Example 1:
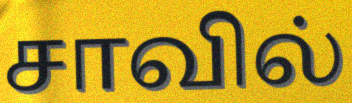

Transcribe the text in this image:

சாவில்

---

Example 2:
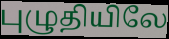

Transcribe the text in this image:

புழுதியிலே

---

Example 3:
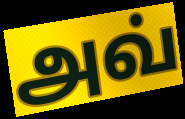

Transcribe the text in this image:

அவ்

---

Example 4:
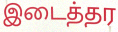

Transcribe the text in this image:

இடைத்தர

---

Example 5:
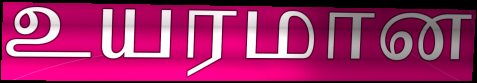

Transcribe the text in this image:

உயரமான